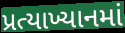
પ્રત્યાખ્યાનમાં